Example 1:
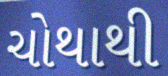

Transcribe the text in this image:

ચોથાથી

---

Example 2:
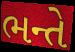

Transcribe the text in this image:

ભન્તે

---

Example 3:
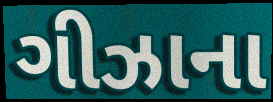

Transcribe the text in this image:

ગીઝાના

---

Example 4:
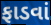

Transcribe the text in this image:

ફાડવાં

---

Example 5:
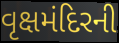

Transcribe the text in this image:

વૃક્ષમંદિરની